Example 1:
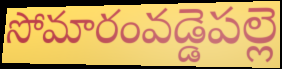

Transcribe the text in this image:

సోమారంవడ్డెపల్లె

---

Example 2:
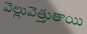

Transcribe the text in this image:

వెల్లువెత్తుతాయి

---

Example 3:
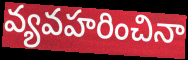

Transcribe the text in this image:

వ్యవహరించినా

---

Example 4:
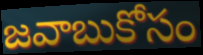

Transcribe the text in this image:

జవాబుకోసం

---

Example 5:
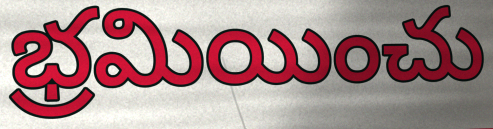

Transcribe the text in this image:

భ్రమియించు